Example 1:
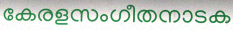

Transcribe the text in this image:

കേരളസംഗീതനാടക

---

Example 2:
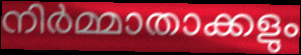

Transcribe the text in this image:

നിർമ്മാതാക്കളും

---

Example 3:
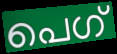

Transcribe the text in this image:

പെഗ്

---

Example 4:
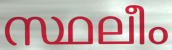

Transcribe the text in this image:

സ്ഥലീം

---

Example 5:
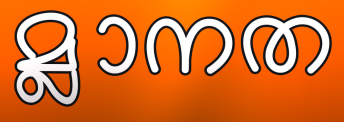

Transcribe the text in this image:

മ്ലാനത